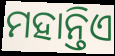
ମହାନ୍ତିଏ